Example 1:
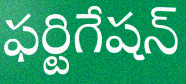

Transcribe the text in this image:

ఫర్టిగేషన్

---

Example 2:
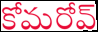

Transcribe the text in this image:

కోమరోవ్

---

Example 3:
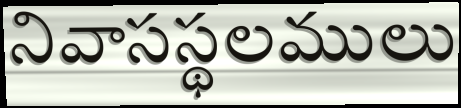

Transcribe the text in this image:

నివాసస్థలములు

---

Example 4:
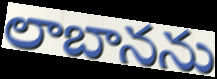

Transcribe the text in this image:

లాబానను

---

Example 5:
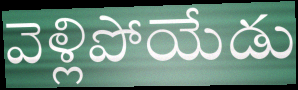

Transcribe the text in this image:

వెళ్లిపోయేడు